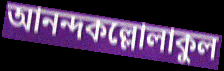
আনন্দকল্লোলাকুল